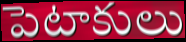
పెటాకులు